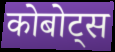
कोबोट्स